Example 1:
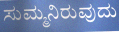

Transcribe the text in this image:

ಸುಮ್ಮನಿರುವುದು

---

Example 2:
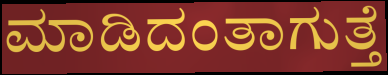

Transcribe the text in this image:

ಮಾಡಿದಂತಾಗುತ್ತೆ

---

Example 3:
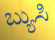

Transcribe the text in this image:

ಬ್ಯುಸಿ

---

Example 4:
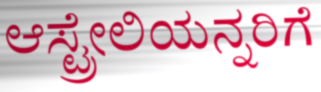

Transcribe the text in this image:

ಆಸ್ಟ್ರೇಲಿಯನ್ನರಿಗೆ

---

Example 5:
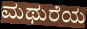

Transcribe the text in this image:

ಮಥುರೆಯ